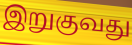
இறுகுவது